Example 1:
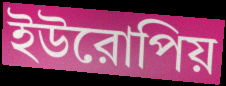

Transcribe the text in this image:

ইউরোপিয়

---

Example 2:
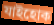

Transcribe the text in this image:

যাইহোক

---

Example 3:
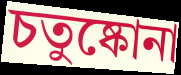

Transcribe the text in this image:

চতুষ্কোনা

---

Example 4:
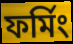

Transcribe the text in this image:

ফর্মিং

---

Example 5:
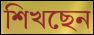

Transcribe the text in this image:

শিখছেন